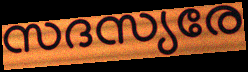
സദസ്യരേ